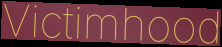
Victimhood